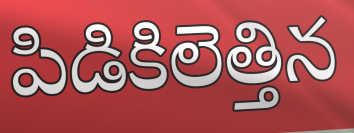
పిడికిలెత్తిన